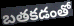
బతకడంతో